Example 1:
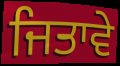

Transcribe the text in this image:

ਜਿਤਾਵੇ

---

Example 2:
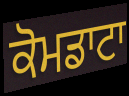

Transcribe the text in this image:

ਕੋਮਡਾਟਾ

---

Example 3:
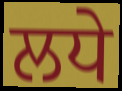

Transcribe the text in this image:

ਲਧੇ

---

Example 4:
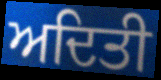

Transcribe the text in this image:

ਅਦਿਤੀ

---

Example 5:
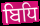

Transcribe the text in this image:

ਬਿਧਿ